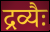
द्रव्यैः